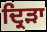
ਦ੍ਰਿੜਾ